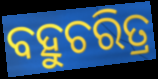
ବହୁଚରିତ୍ର